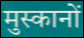
मुस्कानों